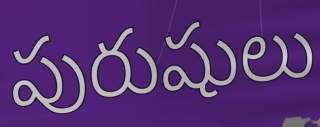
పురుషులు